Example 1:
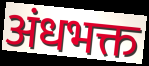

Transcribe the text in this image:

अंधभक्त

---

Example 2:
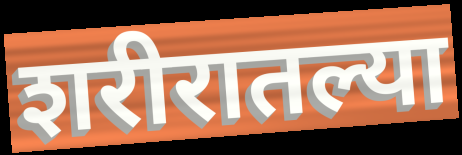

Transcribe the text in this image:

शरीरातल्या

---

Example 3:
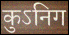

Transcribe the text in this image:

कुऽनिग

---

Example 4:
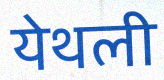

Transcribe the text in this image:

येथली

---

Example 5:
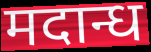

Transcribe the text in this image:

मदान्ध